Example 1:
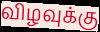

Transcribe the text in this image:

விழவுக்கு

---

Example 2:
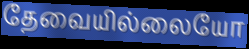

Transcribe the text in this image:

தேவையில்லையோ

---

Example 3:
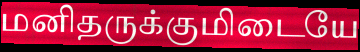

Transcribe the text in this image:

மனிதருக்குமிடையே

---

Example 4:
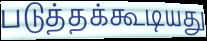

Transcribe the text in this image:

படுத்தக்கூடியது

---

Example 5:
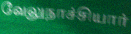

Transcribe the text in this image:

வேலுநாச்சியார்